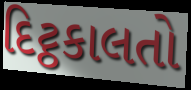
દિટ્ઠકાલતો